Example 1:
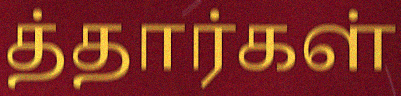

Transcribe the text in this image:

த்தார்கள்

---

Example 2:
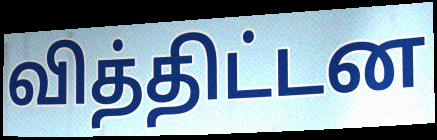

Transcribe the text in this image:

வித்திட்டன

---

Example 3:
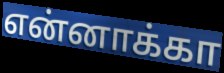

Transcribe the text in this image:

என்னாக்கா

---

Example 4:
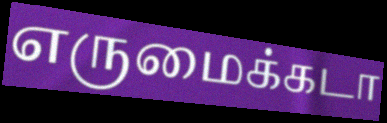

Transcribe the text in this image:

எருமைக்கடா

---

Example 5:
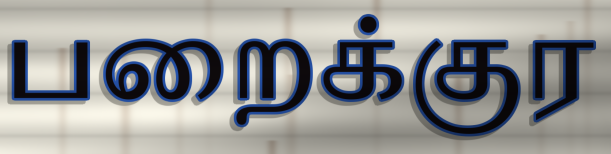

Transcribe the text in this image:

பறைக்குர